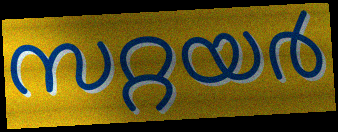
സറ്റയർ